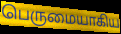
பெருமையாகிய